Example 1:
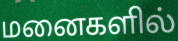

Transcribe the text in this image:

மனைகளில்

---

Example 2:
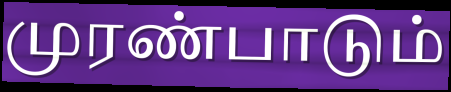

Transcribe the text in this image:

முரண்பாடும்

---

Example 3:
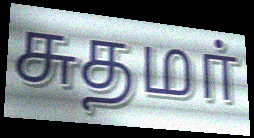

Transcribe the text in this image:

சுதமர்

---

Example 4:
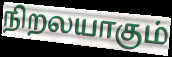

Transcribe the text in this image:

நிறலயாகும்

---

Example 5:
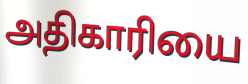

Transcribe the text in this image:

அதிகாரியை